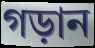
গড়ান